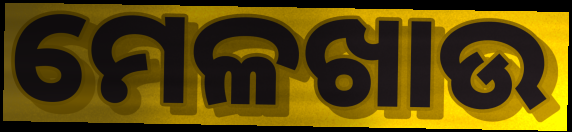
ମେଳଖାଉ